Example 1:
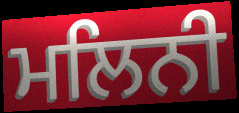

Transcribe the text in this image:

ਮਲਿਨੀ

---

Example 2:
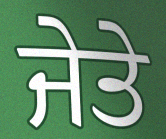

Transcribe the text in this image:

ਜੇਤੇ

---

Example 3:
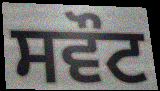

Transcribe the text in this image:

ਸਵੌਟ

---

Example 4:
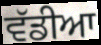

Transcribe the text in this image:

ਵੱਡੀਆ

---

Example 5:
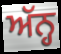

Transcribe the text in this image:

ਅੱਨ੍ਹ